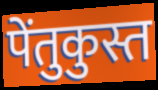
पेंतुकुस्त